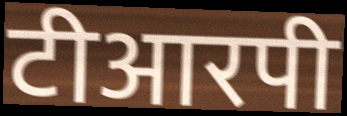
टीआरपी